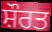
ਸ਼ੌਰਤ